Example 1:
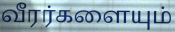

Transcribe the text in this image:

வீரர்களையும்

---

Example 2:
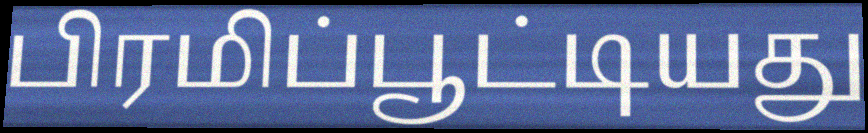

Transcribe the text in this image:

பிரமிப்பூட்டியது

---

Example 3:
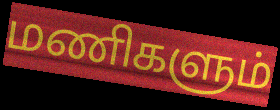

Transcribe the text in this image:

மணிகளும்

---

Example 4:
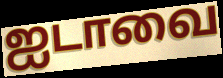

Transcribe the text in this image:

ஐடாவை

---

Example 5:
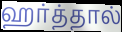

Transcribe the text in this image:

ஹர்த்தால்